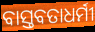
ବାସ୍ତବତାଧର୍ମୀ